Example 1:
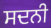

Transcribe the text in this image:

ਸਦਨੀ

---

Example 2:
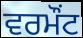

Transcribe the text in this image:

ਵਰਮੌਂਟ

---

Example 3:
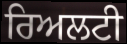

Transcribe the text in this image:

ਰਿਅਲਟੀ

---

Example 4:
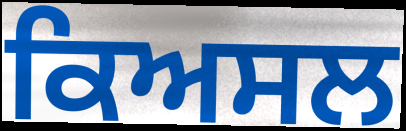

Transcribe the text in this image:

ਕਿਅਸਲ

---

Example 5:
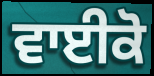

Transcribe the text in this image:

ਵਾਈਕੋ